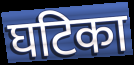
घटिका